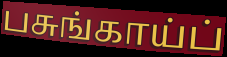
பசுங்காய்ப்